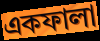
একফালা